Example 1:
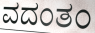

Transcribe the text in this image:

ವದಂತಂ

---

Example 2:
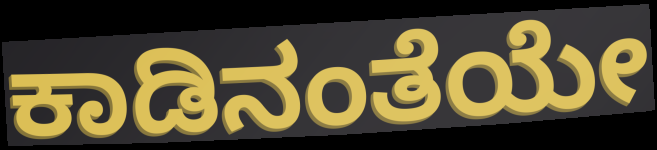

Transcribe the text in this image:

ಕಾಡಿನಂತೆಯೇ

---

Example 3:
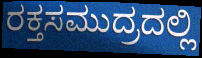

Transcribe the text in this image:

ರಕ್ತಸಮುದ್ರದಲ್ಲಿ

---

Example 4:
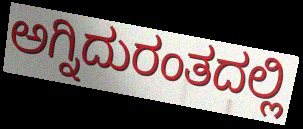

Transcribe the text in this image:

ಅಗ್ನಿದುರಂತದಲ್ಲಿ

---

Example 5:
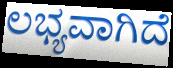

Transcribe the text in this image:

ಲಭ್ಯವಾಗಿದೆ